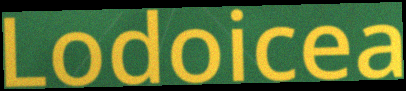
Lodoicea